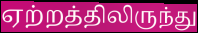
ஏற்றத்திலிருந்து